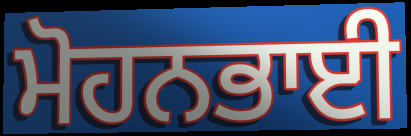
ਮੋਹਨਭਾਈ